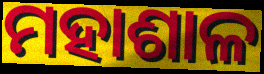
ମହାଶାଳ